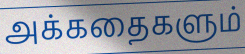
அக்கதைகளும்